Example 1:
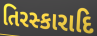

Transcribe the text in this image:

તિરસ્કારાદિ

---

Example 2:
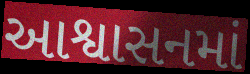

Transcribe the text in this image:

આશ્વાસનમાં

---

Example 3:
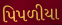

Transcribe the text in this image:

પિપળીયા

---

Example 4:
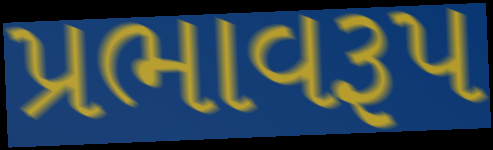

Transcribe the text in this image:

પ્રભાવરૂપ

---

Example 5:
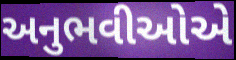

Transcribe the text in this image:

અનુભવીઓએ